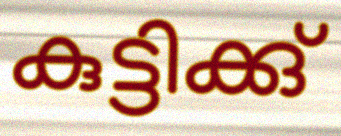
കുട്ടിക്കു്